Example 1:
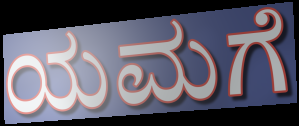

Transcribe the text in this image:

ಯಮಗೆ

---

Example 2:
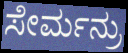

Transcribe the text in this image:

ಸೇರ್ಮನ್ರು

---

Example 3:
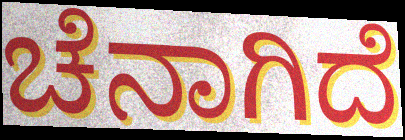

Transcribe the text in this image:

ಚೆನಾಗಿದೆ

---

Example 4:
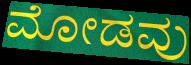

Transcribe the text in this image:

ಮೋಡವು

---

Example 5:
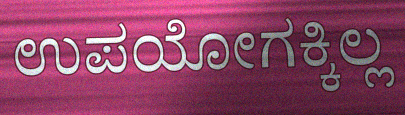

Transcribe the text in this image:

ಉಪಯೋಗಕ್ಕಿಲ್ಲ